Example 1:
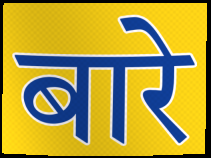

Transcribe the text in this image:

बारे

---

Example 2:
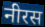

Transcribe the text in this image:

नीरस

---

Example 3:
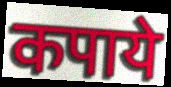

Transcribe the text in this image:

कपाये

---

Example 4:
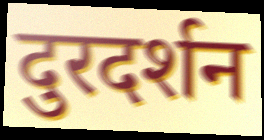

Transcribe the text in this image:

दुरदर्शन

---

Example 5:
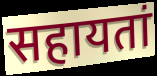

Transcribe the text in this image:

सहायतां